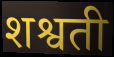
शश्वती